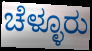
ಚೆಳ್ಳೂರು